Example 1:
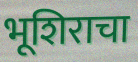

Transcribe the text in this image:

भूशिराचा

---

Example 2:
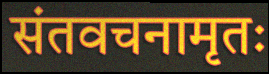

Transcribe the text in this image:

संतवचनामृतः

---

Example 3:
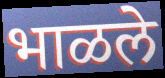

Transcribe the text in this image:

भाळले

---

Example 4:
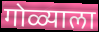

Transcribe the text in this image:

गोळ्याला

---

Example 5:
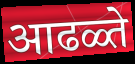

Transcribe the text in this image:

आढळ्ते